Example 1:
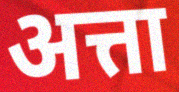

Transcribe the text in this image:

अत्ता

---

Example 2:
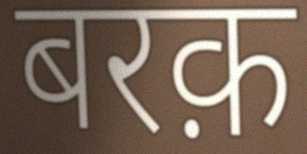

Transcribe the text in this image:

बरक़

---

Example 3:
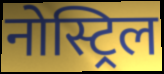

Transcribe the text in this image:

नोस्ट्रिल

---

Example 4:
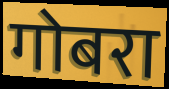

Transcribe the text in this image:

गोबरा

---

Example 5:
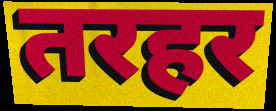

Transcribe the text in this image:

तरहर